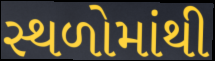
સ્થળોમાંથી